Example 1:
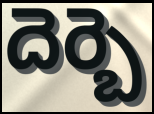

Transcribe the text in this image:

దెర్బె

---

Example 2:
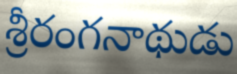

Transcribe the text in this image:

శ్రీరంగనాథుడు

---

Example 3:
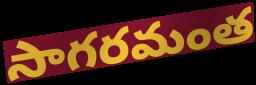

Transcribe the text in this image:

సాగరమంత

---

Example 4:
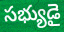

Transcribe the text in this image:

సభ్యుడై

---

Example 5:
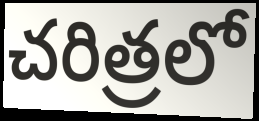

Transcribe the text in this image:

చరిత్రలో